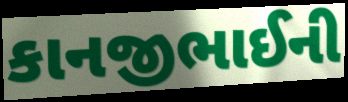
કાનજીભાઈની